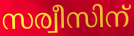
സര്വീസിന്